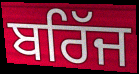
ਬਰਿੱਜ